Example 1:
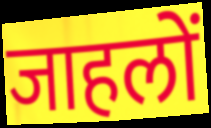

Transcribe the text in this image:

जाहलों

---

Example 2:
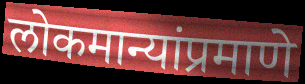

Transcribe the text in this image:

लोकमान्यांप्रमाणे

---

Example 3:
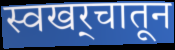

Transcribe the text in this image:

स्वखर्चातून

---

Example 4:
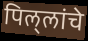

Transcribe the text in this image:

पिल्लांचे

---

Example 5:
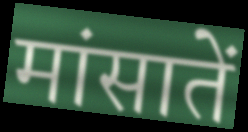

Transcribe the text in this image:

मांसातें